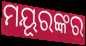
ମୟୂରଙ୍କର